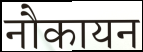
नौकायन